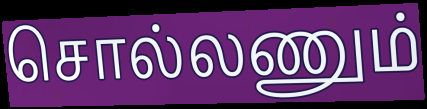
சொல்லணும்